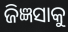
ଜିଜ୍ଞସାକୁ